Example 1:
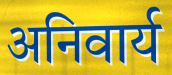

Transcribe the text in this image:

अनिवार्य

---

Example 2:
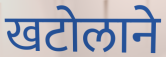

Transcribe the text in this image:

खटोलाने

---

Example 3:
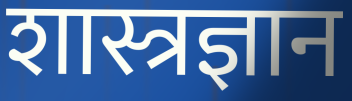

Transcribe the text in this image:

शास्त्रज्ञान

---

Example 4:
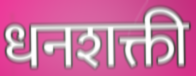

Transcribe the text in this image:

धनशक्ती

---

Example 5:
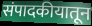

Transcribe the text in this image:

संपादकीयातून